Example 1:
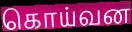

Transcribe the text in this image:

கொய்வன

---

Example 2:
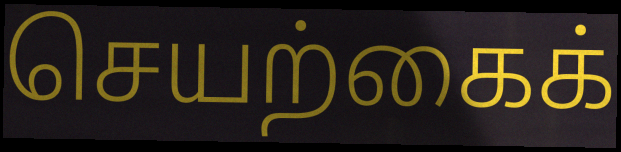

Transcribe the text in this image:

செயற்கைக்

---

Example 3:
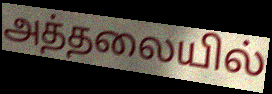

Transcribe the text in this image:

அத்தலையில்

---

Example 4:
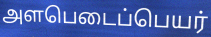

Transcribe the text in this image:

அளபெடைப்பெயர்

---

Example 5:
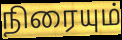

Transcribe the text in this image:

நிரையும்